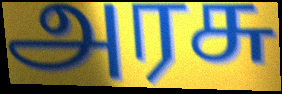
அரசு